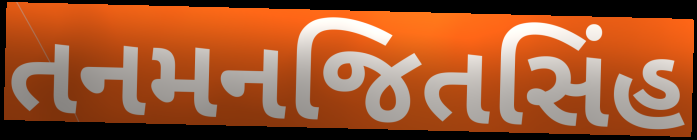
તનમનજિતસિંહ